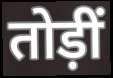
तोड़ीं